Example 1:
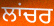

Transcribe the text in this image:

ਲਾਂਚਰ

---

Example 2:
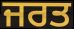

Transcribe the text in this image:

ਜਰਤ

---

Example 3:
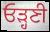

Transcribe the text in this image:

ਓੜ੍ਹਣੀ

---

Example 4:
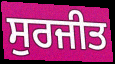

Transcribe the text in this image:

ਸੁਰਜੀਤ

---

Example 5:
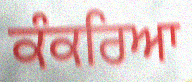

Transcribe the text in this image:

ਕੰਕਰਿਆ